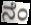
ನೆಂ